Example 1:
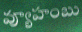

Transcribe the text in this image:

వ్యూహంబు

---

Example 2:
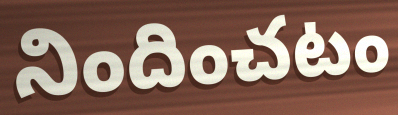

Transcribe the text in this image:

నిందించటం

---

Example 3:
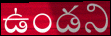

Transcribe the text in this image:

ఉండని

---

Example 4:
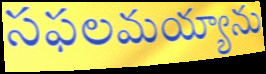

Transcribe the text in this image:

సఫలమయ్యాను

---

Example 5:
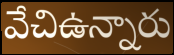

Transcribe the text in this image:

వేచిఉన్నారు